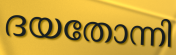
ദയതോന്നി